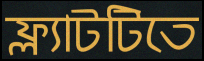
ফ্ল্যাটটিতে